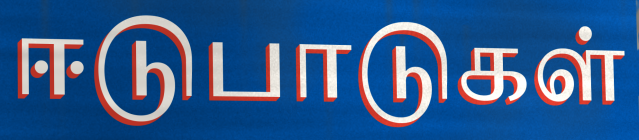
ஈடுபாடுகள்